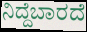
ನಿದ್ದೆಬಾರದೆ